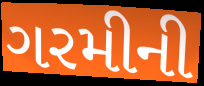
ગરમીની